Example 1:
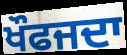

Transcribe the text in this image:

ਖੌਫਜਦਾ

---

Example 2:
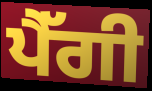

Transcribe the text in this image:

ਪੈੱਗੀ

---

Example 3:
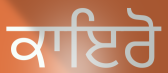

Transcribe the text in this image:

ਕਾਇਰੋ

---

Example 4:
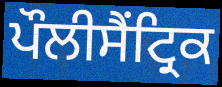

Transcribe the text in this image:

ਪੌਲੀਸੈਂਟ੍ਰਿਕ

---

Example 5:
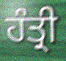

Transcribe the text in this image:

ਹੰਤ੍ਰੀ